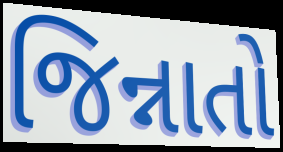
જિન્નાતો